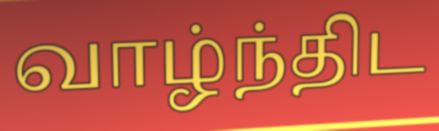
வாழ்ந்திட